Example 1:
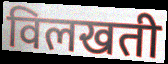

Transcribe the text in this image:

विलखती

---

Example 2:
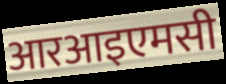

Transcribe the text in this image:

आरआइएमसी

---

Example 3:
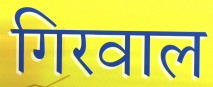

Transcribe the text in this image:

गिरवाल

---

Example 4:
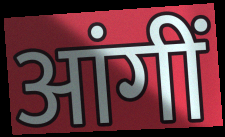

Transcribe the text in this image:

आंगीं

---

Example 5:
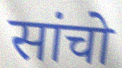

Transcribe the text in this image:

सांचो